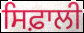
ਸਿਫ਼ਾਲੀ